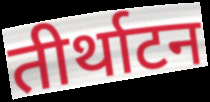
तीर्थाटन